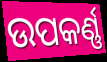
ଉପକର୍ଣ୍ଣ